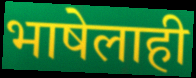
भाषेलाही